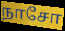
நாசோ